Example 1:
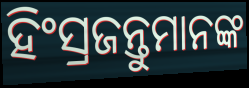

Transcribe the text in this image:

ହିଂସ୍ରଜନ୍ତୁମାନଙ୍କ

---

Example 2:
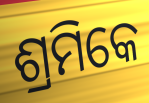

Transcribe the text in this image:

ଶ୍ରମିକେ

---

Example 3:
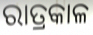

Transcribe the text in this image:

ରାତ୍ରକାଳ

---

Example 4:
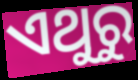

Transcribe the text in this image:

ଏଥୁରୁ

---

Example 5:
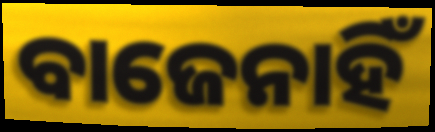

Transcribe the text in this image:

ବାଜେନାହିଁ